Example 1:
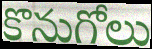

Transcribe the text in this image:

కొనుగోలు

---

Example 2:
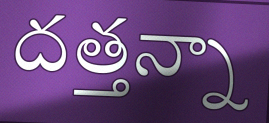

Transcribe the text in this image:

దత్తన్నా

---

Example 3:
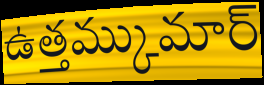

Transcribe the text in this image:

ఉత్తమ్కుమార్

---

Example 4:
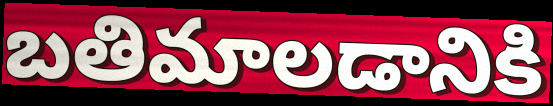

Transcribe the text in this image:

బతిమాలడానికి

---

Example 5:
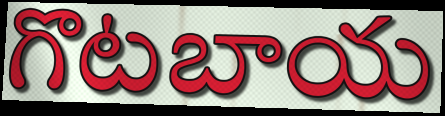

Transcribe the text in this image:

గొటబాయ